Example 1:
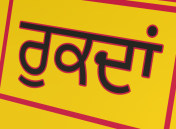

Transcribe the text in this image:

ਰੁਕਦਾਂ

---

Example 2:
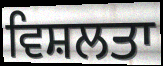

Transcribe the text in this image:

ਵਿਸ਼ਲਤਾ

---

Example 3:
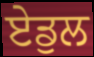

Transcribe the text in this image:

ਏਡੁਲ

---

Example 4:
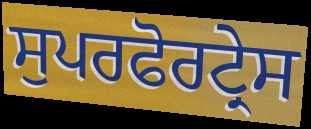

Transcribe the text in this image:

ਸੁਪਰਫੋਰਟ੍ਰੇਸ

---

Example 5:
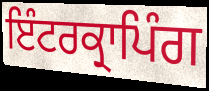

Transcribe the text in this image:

ਇੰਟਰਕ੍ਰਾਪਿੰਗ